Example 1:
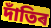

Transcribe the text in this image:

দাঁতিৰ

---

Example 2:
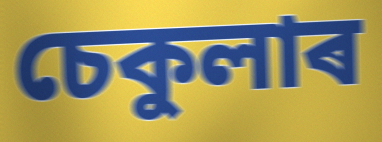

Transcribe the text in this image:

চেকুলাৰ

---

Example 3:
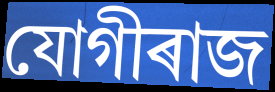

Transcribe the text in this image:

যোগীৰাজ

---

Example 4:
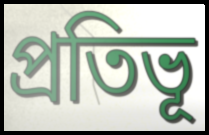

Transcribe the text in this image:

প্ৰতিভূ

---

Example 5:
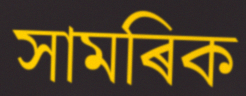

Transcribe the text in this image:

সামৰিক